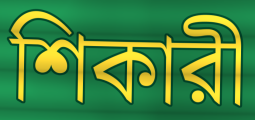
শিকারী